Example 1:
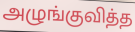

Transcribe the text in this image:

அழுங்குவித்த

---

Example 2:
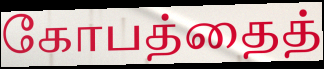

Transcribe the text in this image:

கோபத்தைத்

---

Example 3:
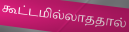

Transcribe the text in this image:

கூட்டமில்லாததால்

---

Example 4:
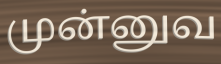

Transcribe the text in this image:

முன்னுவ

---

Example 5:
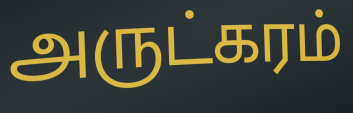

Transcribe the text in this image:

அருட்கரம்